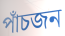
পাঁচজন